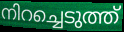
നിറച്ചെടുത്ത്